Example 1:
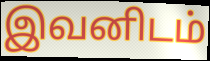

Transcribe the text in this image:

இவனிடம்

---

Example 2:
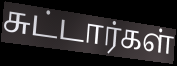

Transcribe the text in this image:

சுட்டார்கள்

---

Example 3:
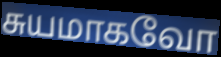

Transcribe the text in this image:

சுயமாகவோ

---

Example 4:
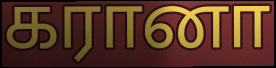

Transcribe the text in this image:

கரானா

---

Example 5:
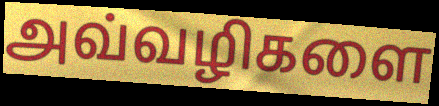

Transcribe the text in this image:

அவ்வழிகளை